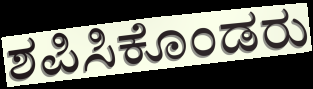
ಶಪಿಸಿಕೊಂಡರು